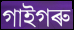
গাইগৰু